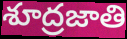
శూద్రజాతి